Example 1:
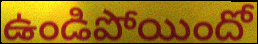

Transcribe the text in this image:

ఉండిపోయిందో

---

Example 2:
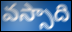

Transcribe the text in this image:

వస్సాది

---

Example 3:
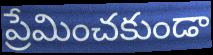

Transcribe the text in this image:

ప్రేమించకుండా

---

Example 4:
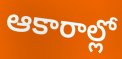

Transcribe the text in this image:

ఆకారాల్లో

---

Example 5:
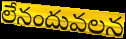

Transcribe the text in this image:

లేనందువలన